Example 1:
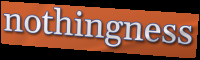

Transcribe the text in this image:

nothingness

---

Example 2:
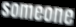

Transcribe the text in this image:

someone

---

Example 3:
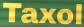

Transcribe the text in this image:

Taxol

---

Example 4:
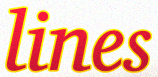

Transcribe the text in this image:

lines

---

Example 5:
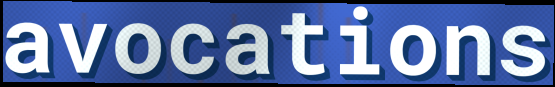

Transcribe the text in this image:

avocations